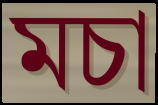
মচা